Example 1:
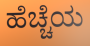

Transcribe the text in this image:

ಹೆಚ್ಚೆಯ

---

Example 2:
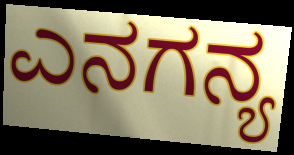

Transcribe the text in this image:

ಎನಗನ್ಯ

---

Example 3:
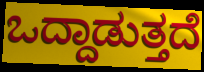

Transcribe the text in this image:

ಒದ್ದಾಡುತ್ತದೆ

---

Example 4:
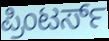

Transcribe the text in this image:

ಪ್ರಿಂಟರ್ಸ್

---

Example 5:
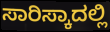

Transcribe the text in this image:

ಸಾರಿಸ್ಕಾದಲ್ಲಿ